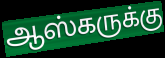
ஆஸ்கருக்கு